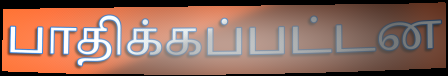
பாதிக்கப்பட்டன